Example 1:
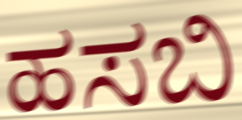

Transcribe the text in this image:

ಹಸಬಿ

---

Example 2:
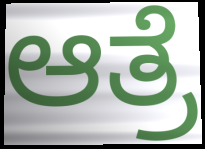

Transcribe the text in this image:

ಆತ್ರೆ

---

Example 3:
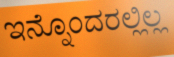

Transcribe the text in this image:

ಇನ್ನೊಂದರಲ್ಲಿಲ್ಲ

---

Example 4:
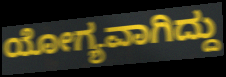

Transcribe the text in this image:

ಯೋಗ್ಯವಾಗಿದ್ದು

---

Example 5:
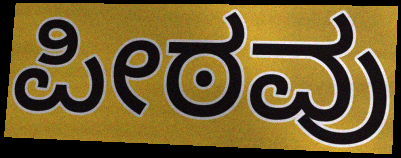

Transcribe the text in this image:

ಪೀಠವು